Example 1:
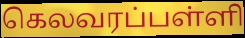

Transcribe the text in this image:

கெலவரப்பள்ளி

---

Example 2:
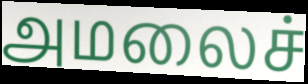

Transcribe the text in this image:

அமலைச்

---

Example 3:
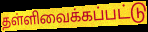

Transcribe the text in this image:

தள்ளிவைக்கப்பட்டு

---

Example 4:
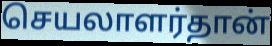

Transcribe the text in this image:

செயலாளர்தான்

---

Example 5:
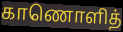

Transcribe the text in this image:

காணொளித்